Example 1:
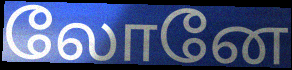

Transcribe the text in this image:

லோனே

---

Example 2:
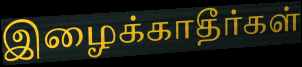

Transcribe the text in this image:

இழைக்காதீர்கள்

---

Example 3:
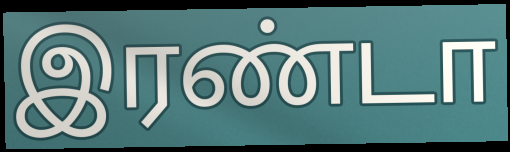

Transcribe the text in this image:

இரண்டா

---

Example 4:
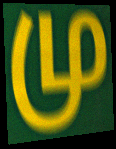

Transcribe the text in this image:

மு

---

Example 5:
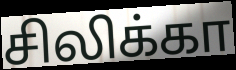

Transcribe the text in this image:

சிலிக்கா